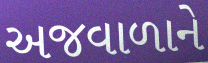
અજવાળાને